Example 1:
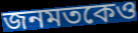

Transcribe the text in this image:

জনমতকেও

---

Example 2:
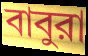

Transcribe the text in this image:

বাবুরা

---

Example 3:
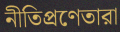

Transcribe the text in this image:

নীতিপ্রণেতারা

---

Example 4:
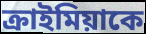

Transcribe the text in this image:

ক্রাইমিয়াকে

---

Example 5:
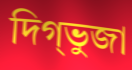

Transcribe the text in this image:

দিগ্ভুজা